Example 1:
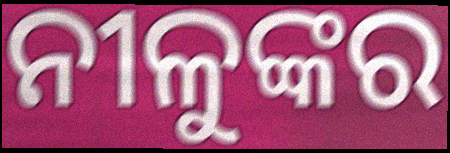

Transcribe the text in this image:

ନୀଳୁଙ୍କର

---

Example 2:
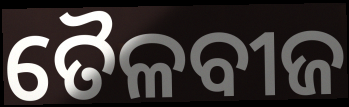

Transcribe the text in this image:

ତୈଳବୀଜ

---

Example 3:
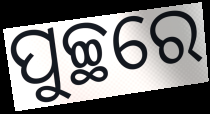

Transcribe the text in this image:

ପୁଚ୍ଛରେ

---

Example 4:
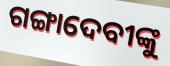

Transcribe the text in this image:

ଗଙ୍ଗାଦେବୀଙ୍କୁ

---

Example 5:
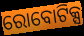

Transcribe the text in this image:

ରୋବୋଟିକ୍ସ